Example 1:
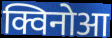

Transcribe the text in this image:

क्विनोआ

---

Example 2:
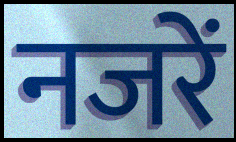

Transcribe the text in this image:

नजरें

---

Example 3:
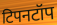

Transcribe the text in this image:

टिपनटॉप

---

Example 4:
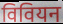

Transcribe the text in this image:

विवियन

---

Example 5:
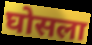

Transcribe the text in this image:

घोसला